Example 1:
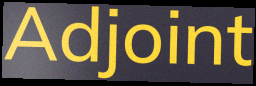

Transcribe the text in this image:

Adjoint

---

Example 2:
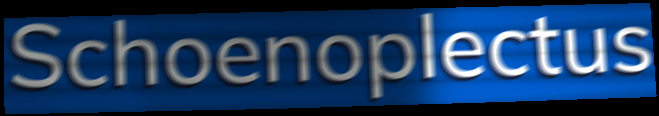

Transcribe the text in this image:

Schoenoplectus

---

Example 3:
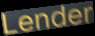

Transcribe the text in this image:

Lender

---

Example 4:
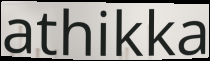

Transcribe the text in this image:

athikka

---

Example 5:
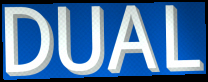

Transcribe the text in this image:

DUAL